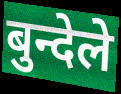
बुन्देले